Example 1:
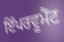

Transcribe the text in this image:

ਇੰਪਰਵੂਮੈਂਟ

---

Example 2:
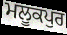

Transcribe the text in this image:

ਮਲੂਕਪੁਰ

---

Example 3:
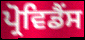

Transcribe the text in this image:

ਪ੍ਰੋਵਿਡੈਂਸ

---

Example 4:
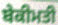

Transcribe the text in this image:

ਬੇਕੀਮਤੀ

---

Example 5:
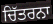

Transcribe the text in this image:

ਚਿੱਤਰਨਾ